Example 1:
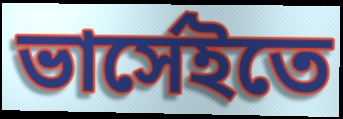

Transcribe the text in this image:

ভার্সেইতে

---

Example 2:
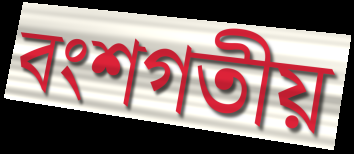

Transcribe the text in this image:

বংশগতীয়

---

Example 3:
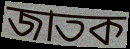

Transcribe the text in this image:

জাতক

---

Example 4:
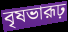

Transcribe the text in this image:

বৃষভারূঢ়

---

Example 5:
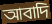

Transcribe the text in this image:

আবাদি